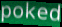
poked